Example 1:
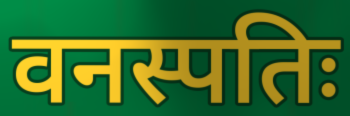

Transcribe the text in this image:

वनस्पतिः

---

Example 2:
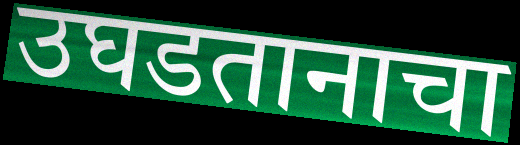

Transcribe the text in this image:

उघडतानाचा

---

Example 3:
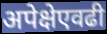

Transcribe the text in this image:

अपेक्षेएवढी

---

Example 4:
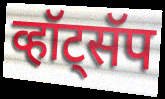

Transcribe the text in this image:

व्हॉट्सॅप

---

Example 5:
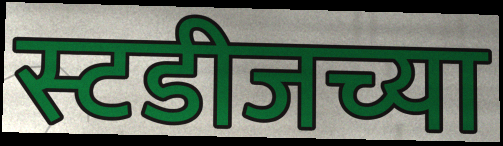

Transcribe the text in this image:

स्टडीजच्या